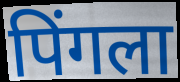
पिंगला